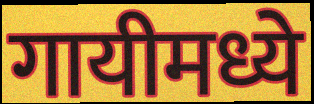
गायीमध्ये